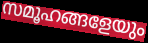
സമൂഹങ്ങളേയും